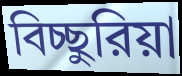
বিচ্ছুরিয়া